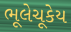
ભૂલેચૂકેય